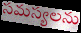
సమస్యలను